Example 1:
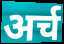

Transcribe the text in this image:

अर्च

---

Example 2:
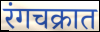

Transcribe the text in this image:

रंगचक्रात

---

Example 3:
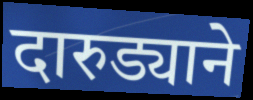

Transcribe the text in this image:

दारुड्याने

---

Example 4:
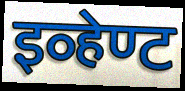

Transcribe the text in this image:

इव्हेण्ट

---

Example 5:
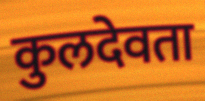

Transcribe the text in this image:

कुलदेवता